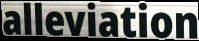
alleviation